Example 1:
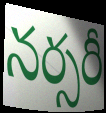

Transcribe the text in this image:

నర్సరీ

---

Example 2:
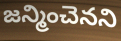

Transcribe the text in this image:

జన్మించెనని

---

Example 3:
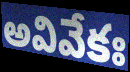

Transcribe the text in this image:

అవివేకః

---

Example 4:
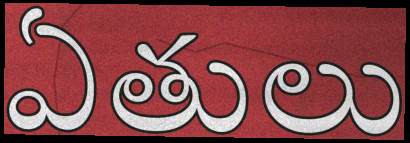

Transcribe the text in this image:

ఏతులు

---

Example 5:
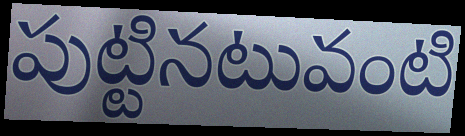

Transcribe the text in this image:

పుట్టినటువంటి